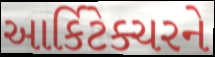
આર્કિટેક્ચરને